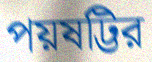
পয়ষট্টির